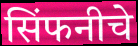
सिंफनीचे